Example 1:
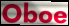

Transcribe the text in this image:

Oboe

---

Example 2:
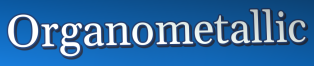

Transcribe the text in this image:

Organometallic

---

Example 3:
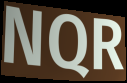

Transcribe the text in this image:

NQR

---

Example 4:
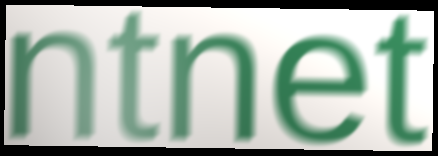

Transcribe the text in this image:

ntnet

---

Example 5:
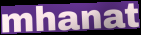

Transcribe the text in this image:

mhanat